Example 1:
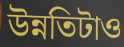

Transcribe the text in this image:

উন্নতিটাও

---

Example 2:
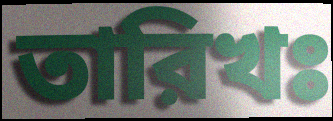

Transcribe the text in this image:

তারিখঃ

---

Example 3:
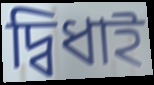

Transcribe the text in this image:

দ্বিধাই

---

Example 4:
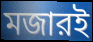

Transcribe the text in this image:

মজারই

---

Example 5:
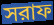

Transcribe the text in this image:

সরাফ